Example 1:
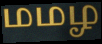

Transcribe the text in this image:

மமழ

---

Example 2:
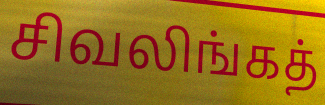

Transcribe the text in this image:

சிவலிங்கத்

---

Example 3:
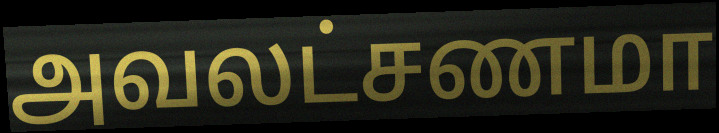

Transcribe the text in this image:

அவலட்சணமா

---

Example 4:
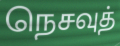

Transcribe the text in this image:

நெசவுத்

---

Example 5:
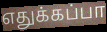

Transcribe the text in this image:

எதுக்கப்பா